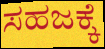
ಸಹಜಕ್ಕೆ